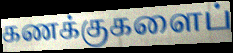
கணக்குகளைப்